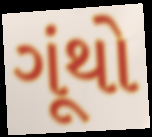
ગૂંથો